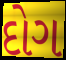
દોગ